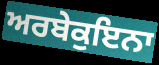
ਅਰਬੇਕੁਇਨਾ